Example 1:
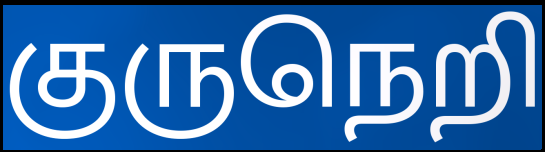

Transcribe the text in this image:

குருநெறி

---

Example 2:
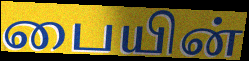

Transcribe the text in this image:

பையின்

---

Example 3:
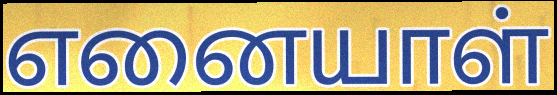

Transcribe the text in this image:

எனையாள்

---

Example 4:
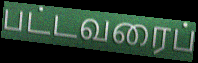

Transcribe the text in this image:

பட்டவரைப்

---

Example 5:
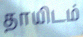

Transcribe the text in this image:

தாயிடம்